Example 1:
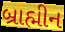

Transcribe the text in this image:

બ્રાહ્મીન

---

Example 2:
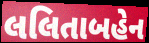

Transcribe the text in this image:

લલિતાબહેન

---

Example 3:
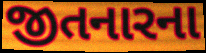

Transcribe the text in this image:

જીતનારના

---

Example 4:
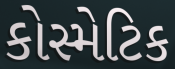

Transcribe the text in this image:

કોસ્મેટિક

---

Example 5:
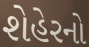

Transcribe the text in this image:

શેહેરનો